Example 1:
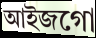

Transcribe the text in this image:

আইজগো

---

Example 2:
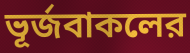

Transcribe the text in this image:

ভূর্জবাকলের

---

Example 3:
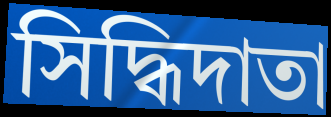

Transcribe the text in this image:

সিদ্ধিদাতা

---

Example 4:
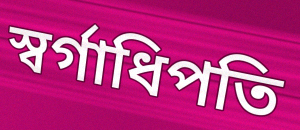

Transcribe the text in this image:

স্বর্গাধিপতি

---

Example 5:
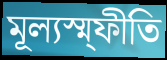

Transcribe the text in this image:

মূল্যস্ম্ফীতি